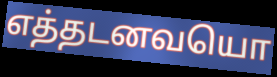
எத்தடனவயொ